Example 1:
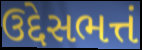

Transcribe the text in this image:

ઉદ્દેસભત્તં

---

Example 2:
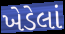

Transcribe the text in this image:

ખેડેલાં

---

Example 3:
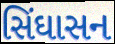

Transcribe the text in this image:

સિંઘાસન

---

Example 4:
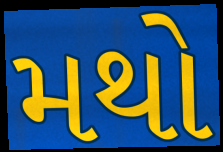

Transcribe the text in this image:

મથો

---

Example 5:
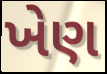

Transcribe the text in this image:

ખેણ